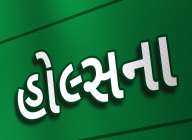
હોલ્સના